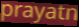
prayatn